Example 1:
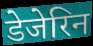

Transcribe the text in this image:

डेजेरिन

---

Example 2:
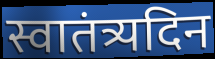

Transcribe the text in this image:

स्वातंत्र्यदिन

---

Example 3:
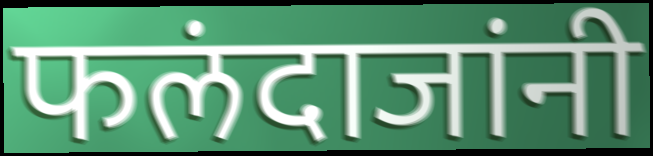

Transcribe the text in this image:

फलंदाजांनी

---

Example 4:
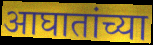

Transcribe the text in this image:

आघातांच्या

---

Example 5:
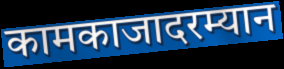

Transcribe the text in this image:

कामकाजादरम्यान